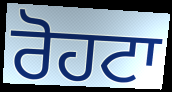
ਰੋਹਟਾ